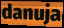
danuja